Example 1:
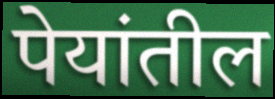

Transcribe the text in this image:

पेयांतील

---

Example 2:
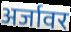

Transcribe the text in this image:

अर्जावर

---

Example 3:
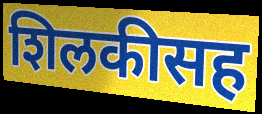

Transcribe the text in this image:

शिलकीसह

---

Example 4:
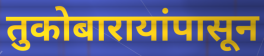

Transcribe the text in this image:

तुकोबारायांपासून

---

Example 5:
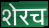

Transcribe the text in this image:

शेरच